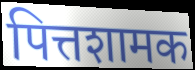
पित्तशामक